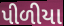
પીળીયા